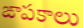
ఙాపకాలు